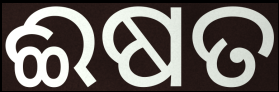
ଈଷତ